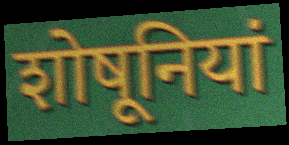
शोषूनियां